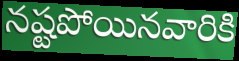
నష్టపోయినవారికి